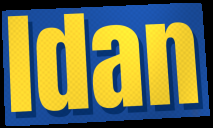
ldan